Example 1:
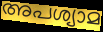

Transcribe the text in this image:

അപശ്യാമ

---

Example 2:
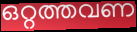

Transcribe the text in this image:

ഒറ്റത്തവണ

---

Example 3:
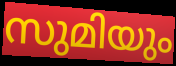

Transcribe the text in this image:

സുമിയും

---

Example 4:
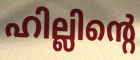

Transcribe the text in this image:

ഹില്ലിന്റെ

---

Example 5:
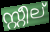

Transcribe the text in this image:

സ്റ്റീല്